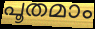
പൂതമാം